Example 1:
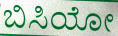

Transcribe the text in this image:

ಬಿಸಿಯೋ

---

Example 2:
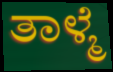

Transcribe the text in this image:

ತಾಳ್ಮೆ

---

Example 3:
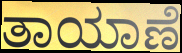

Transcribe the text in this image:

ತಾಯಾಣೆ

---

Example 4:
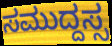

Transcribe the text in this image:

ಸಮುದ್ದಸ್ಸ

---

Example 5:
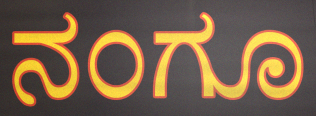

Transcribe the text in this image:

ನಂಗೂ